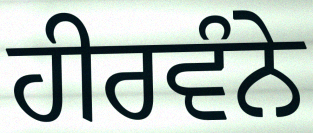
ਹੀਰਵੰਨੇ